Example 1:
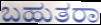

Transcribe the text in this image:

ಬಹುತರಾ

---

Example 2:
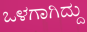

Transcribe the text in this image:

ಒಳಗಾಗಿದ್ದು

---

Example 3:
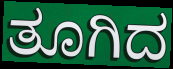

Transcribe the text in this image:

ತೂಗಿದ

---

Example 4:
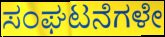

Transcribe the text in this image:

ಸಂಘಟನೆಗಳೇ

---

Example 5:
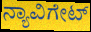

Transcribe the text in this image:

ನ್ಯಾವಿಗೇಟ್